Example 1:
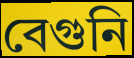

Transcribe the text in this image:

বেগুনি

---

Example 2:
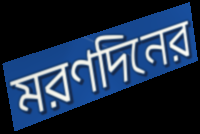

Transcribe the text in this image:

মরণদিনের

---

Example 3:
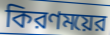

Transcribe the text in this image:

কিরণময়ের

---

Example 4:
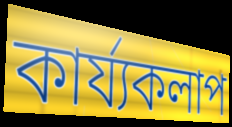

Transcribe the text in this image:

কার্য্যকলাপ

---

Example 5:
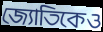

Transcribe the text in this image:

জ্যোতিকেও